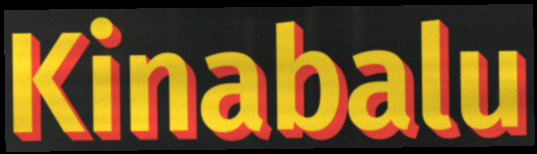
Kinabalu